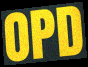
OPD